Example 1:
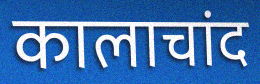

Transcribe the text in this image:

कालाचांद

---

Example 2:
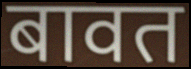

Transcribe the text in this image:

बावत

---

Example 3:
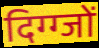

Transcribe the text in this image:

दिग्ग्जों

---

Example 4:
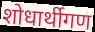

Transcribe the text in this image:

शोधार्थीगण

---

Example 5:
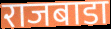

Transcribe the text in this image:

राजबाडा